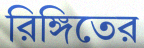
রিঙ্গিতের